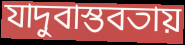
যাদুবাস্তবতায়